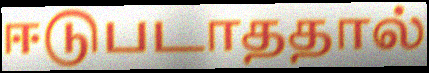
ஈடுபடாததால்